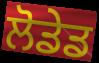
ਲੋਡੇਡ